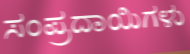
ಸಂಪ್ರದಾಯಿಗಳು